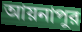
আয়নাপুর